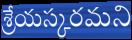
శ్రేయస్కరమని